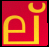
ല്